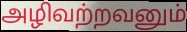
அழிவற்றவனும்